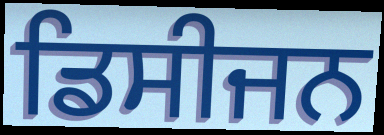
ਡਿਸੀਜਨ